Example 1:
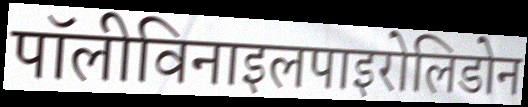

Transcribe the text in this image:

पॉलीविनाइलपाइरोलिडोन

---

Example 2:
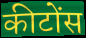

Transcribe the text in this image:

कीटोंस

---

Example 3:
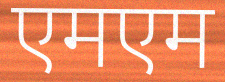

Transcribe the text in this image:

एमएम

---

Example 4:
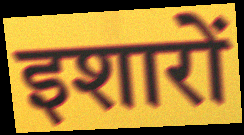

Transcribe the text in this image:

इशारों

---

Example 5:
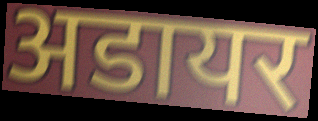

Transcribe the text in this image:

अडायर